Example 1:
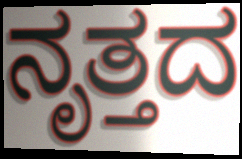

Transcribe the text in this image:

ನೃತ್ತದ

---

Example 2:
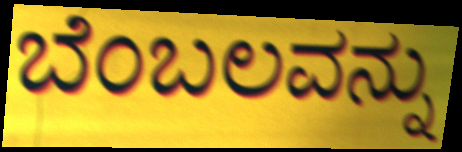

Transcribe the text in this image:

ಬೆಂಬಲವನ್ನು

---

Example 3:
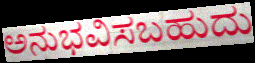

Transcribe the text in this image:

ಅನುಭವಿಸಬಹುದು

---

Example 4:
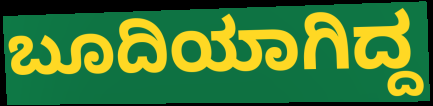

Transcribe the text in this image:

ಬೂದಿಯಾಗಿದ್ದ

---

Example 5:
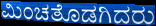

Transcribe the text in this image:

ಮಿಂಚತೊಡಗಿದರು